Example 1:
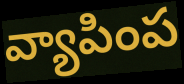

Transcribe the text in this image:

వ్యాపింప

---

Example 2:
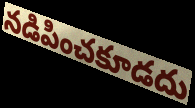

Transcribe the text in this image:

నడిపించకూడదు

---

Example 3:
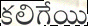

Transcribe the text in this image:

కలిగేయి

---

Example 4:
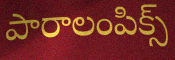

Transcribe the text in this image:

పారాలంపిక్స్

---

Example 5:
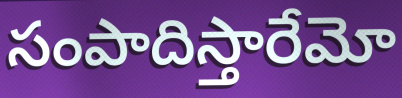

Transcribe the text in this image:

సంపాదిస్తారేమో